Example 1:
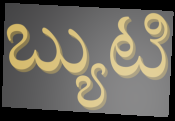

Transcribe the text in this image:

ಬ್ಯುಟಿ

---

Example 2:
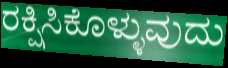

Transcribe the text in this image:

ರಕ್ಷಿಸಿಕೊಳ್ಳುವುದು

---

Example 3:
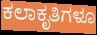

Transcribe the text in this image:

ಕಲಾಕೃತಿಗಳೂ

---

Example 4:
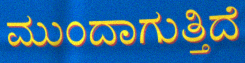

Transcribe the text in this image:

ಮುಂದಾಗುತ್ತಿದೆ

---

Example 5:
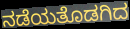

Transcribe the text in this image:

ನಡೆಯತೊಡಗಿದ